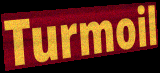
Turmoil